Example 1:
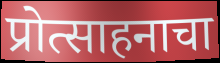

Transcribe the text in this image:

प्रोत्साहनाचा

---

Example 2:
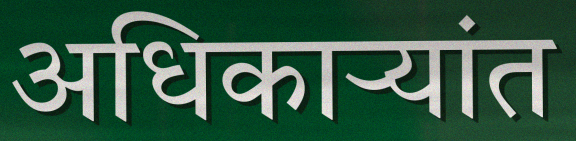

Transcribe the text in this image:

अधिकाऱ्यांत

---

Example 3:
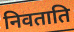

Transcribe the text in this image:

निवताति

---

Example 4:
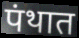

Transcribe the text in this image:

पंथात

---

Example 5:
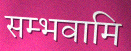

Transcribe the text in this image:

सम्भवामि